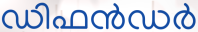
ഡിഫൻഡർ